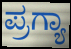
ಪ್ರಗ್ಯಾ